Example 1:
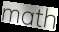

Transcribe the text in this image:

math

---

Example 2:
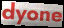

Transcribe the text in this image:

dyone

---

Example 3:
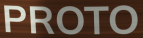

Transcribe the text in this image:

PROTO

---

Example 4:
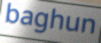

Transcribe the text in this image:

baghun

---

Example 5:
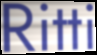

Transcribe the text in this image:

Ritti